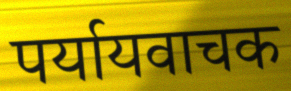
पर्यायवाचक